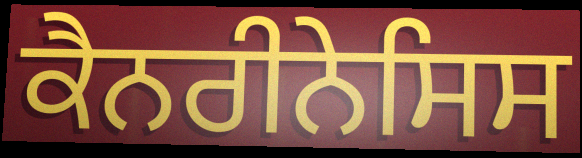
ਕੈਨਰੀਨੇਸਿਸ